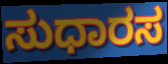
ಸುಧಾರಸ